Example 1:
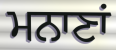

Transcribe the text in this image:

ਮਨਾਣਾਂ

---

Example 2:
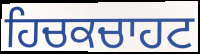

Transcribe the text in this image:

ਹਿਚਕਚਾਹਟ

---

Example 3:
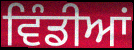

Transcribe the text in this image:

ਵਿੰਡੀਆਂ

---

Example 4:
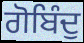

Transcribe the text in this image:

ਗੋਬਿੰਦੁ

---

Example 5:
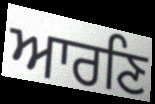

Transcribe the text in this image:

ਆਰਣਿ